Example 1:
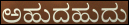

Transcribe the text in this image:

ಅಹುದಹುದು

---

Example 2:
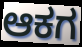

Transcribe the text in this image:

ಆಕಗ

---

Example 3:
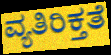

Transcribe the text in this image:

ವ್ಯತಿರಿಕ್ತತೆ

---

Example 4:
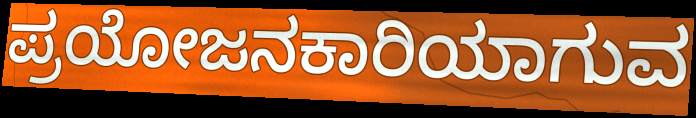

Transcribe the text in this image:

ಪ್ರಯೋಜನಕಾರಿಯಾಗುವ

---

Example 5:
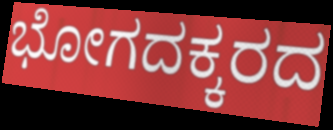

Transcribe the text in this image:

ಭೋಗದಕ್ಕರದ